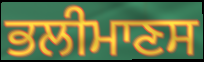
ਭਲੀਮਾਣਸ